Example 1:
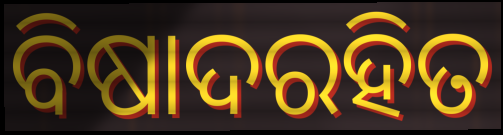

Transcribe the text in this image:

ବିଷାଦରହିତ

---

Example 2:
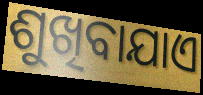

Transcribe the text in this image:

ଶୁଖିବାଯାଏ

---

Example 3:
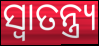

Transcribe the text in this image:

ସ୍ଵାତନ୍ତ୍ର୍ୟ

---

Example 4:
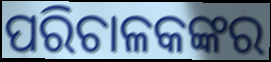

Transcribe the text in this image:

ପରିଚାଳକଙ୍କର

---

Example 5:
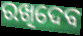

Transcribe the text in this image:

ରଖିଦେବ